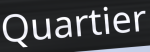
Quartier